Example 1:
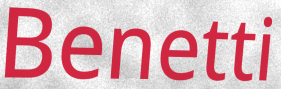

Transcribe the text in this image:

Benetti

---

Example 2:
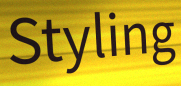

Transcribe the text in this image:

Styling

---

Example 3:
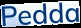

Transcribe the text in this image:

Pedda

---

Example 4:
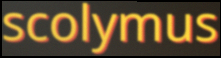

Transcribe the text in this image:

scolymus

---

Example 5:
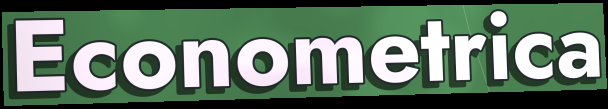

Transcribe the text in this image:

Econometrica